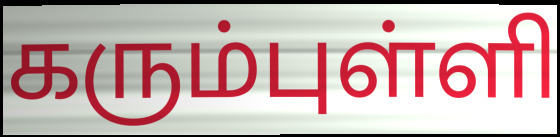
கரும்புள்ளி